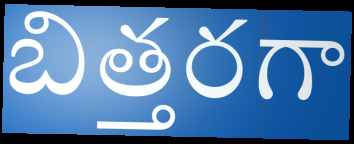
బిత్తరగా